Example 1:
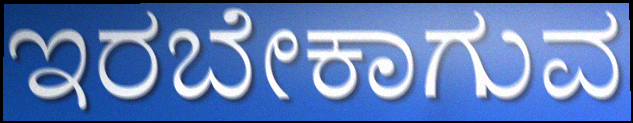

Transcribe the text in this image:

ಇರಬೇಕಾಗುವ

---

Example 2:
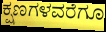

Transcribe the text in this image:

ಕ್ಷಣಗಳವರೆಗೂ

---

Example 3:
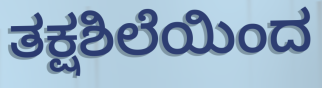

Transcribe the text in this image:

ತಕ್ಷಶಿಲೆಯಿಂದ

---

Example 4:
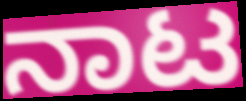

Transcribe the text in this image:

ನಾಟ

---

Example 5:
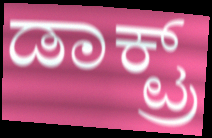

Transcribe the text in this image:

ಡಾಕ್ಟ್ರ್